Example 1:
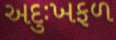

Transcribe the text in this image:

અદુઃખફળ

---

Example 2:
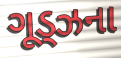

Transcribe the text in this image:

ગૂડ્ઝના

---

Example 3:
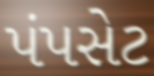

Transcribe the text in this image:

પંપસેટ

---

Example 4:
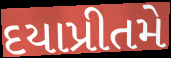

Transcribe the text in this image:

દયાપ્રીતમે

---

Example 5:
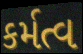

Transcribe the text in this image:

કર્મત્વ